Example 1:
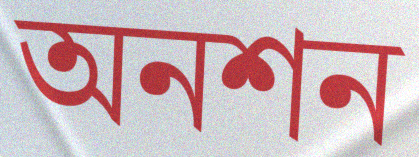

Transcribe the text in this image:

অনশন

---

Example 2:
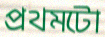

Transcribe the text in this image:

প্ৰথমটো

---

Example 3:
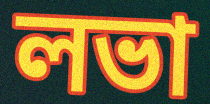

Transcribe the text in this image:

লভা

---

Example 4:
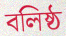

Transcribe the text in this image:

বলিষ্ঠ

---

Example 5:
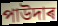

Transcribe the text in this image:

পাউদাৰ